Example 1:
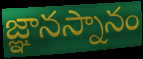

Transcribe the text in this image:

జ్ఞానస్నానం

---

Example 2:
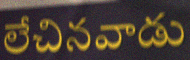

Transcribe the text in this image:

లేచినవాడు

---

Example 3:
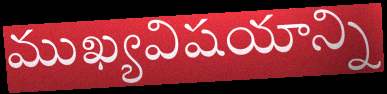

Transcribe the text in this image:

ముఖ్యవిషయాన్ని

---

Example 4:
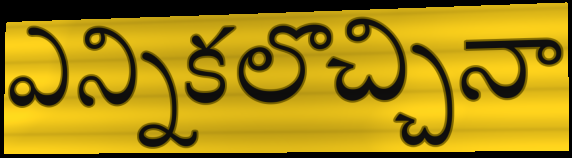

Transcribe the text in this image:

ఎన్నికలొచ్చినా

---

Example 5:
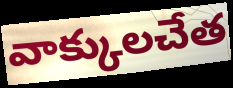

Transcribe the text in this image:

వాక్కులచేత